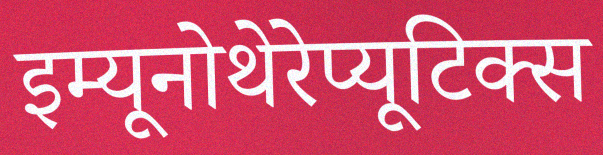
इम्यूनोथेरेप्यूटिक्स